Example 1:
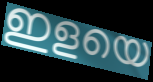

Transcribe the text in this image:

ഇളയെ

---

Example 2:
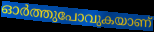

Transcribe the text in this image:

ഓർത്തുപോവുകയാണ്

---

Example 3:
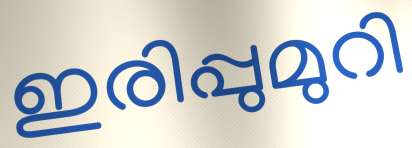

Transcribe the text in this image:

ഇരിപ്പുമുറി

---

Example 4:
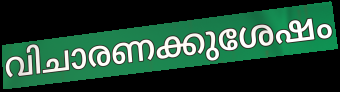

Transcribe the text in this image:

വിചാരണക്കുശേഷം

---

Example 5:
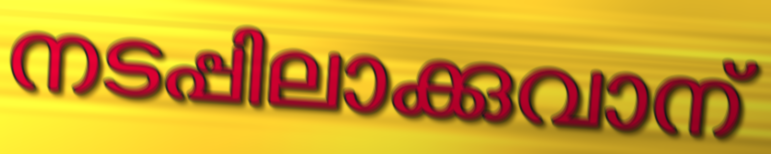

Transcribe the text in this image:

നടപ്പിലാക്കുവാന്